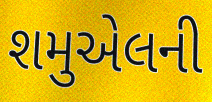
શમુએલની